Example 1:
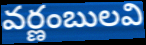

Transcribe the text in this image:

వర్ణంబులవి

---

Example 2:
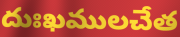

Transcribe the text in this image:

దుఃఖములచేత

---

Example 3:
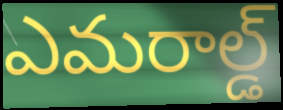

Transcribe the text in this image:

ఎమరాల్డ్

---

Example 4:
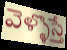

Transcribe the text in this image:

వెళ్ళొస్తే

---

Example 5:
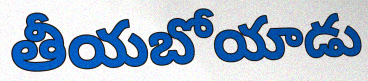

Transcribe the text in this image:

తీయబోయాడు